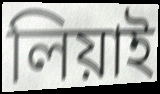
লিয়াই